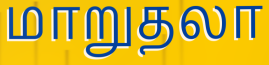
மாறுதலா